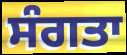
ਸੰਗਤਾ